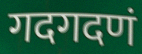
गदगदणं